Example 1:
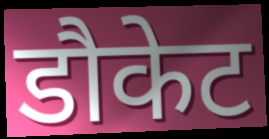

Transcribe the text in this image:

डौकेट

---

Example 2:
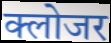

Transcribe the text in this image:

क्लोजर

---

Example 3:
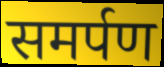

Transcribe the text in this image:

समर्पण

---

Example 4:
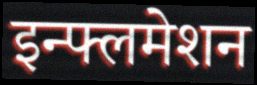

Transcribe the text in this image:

इन्फ्लमेशन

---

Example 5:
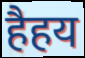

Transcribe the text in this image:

हैहय